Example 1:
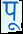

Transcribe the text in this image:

पू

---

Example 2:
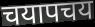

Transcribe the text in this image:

चयापचय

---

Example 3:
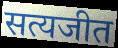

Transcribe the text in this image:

सत्यजीत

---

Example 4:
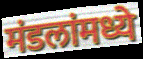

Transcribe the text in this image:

मंडलांमध्ये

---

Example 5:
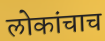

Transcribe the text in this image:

लोकांचाच